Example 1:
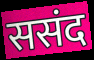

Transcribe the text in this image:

ससंद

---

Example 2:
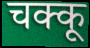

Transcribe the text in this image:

चक्कू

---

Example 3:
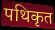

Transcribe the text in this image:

पथिकृत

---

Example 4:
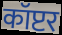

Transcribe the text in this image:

कॉप्टर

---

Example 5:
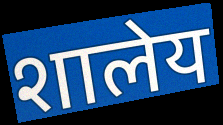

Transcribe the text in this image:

शालेय